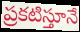
ప్రకటిస్తూనే